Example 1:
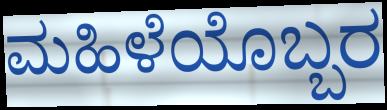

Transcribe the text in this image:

ಮಹಿಳೆಯೊಬ್ಬರ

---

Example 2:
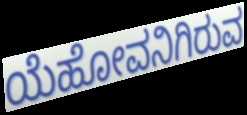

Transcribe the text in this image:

ಯೆಹೋವನಿಗಿರುವ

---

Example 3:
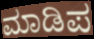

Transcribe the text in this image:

ಮಾಡಿಪ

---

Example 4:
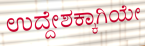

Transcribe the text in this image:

ಉದ್ದೇಶಕ್ಕಾಗಿಯೇ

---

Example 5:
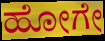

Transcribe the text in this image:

ಹೋಗೇ